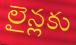
లైన్లకు